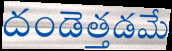
దండెత్తడమే